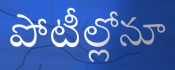
పోటీల్లోనూ